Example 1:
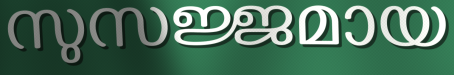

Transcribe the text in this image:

സുസജ്ജമായ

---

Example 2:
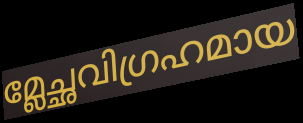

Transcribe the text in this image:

മ്ലേച്ഛവിഗ്രഹമായ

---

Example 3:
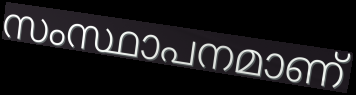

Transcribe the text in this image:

സംസ്ഥാപനമാണ്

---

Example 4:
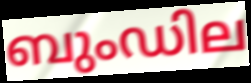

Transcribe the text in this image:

ബുംഡില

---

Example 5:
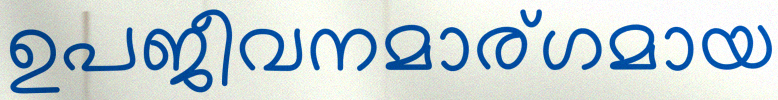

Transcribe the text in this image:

ഉപജീവനമാര്ഗമായ